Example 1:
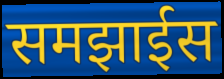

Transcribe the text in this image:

समझाईस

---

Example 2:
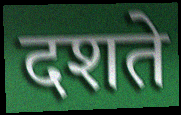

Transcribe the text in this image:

दशते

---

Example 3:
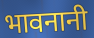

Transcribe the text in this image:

भावनानी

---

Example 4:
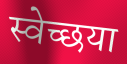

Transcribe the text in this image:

स्वेच्छया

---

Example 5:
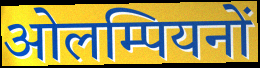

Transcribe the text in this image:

ओलम्पियनों